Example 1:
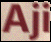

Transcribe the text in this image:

Aji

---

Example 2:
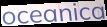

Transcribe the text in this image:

oceanica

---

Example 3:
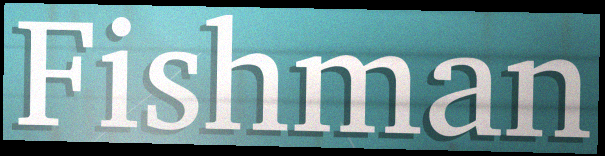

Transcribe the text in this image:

Fishman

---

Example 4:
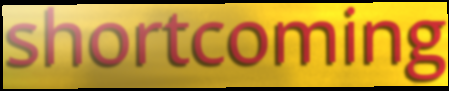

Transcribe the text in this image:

shortcoming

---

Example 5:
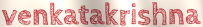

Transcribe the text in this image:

venkatakrishna